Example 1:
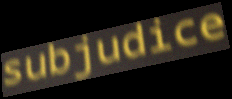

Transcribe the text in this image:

subjudice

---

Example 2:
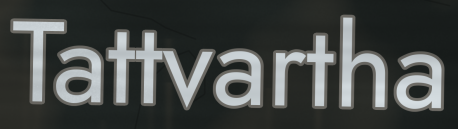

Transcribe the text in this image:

Tattvartha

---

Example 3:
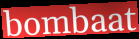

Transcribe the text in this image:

bombaat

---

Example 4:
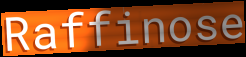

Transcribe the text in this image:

Raffinose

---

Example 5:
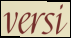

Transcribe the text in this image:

versi